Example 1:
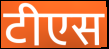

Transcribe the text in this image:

टीएस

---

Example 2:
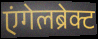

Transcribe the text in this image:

एंगेलब्रेक्ट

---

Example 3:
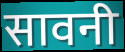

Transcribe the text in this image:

सावनी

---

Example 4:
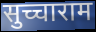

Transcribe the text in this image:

सुच्चाराम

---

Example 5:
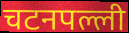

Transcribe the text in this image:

चटनपल्ली